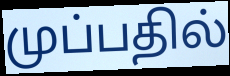
முப்பதில்